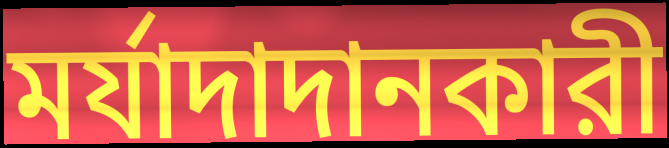
মর্যাদাদানকারী